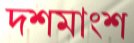
দশমাংশ